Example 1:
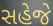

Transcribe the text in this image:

સહેજે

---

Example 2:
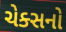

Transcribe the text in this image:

ચેક્સનો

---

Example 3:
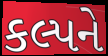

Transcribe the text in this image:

કલ્પને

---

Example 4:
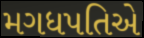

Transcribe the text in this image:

મગધપતિએ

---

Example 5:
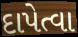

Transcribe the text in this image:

દાપેત્વા